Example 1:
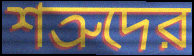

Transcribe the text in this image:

শত্রুদের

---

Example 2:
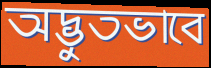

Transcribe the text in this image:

অদ্ভুতভাবে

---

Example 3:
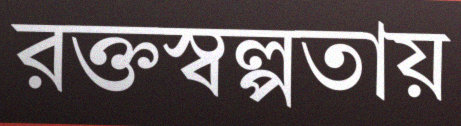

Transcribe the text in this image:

রক্তস্বল্পতায়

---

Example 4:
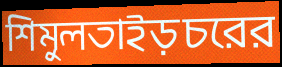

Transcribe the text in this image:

শিমুলতাইড়চরের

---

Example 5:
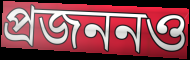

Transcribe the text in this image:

প্রজননও